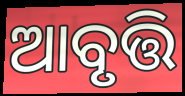
ଆବୃତ୍ତି